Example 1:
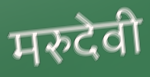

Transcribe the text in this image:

मरुदेवी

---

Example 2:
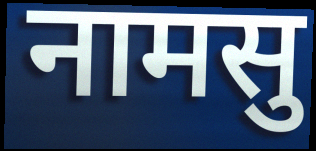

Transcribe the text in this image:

नामसु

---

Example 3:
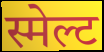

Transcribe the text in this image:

स्मेल्ट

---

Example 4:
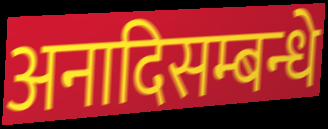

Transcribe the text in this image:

अनादिसम्बन्धे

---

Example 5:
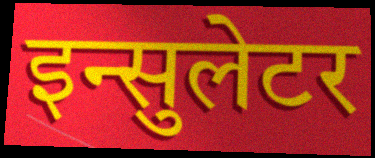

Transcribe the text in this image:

इन्सुलेटर